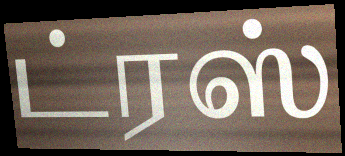
ட்ரஸ்